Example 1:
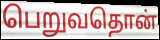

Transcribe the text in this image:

பெறுவதொன்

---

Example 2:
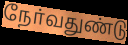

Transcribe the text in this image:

நேர்வதுண்டு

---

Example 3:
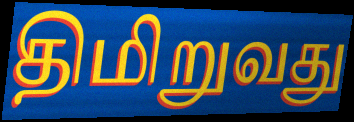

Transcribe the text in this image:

திமிறுவது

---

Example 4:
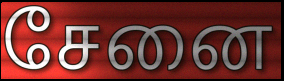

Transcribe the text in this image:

சேனை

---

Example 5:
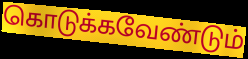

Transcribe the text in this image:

கொடுக்கவேண்டும்